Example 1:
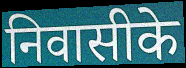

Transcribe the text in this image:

निवासीके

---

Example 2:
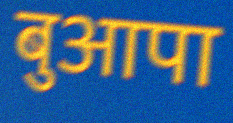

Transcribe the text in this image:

बुआपा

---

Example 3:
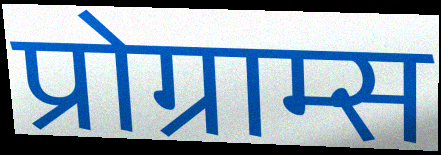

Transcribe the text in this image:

प्रोग्राम्स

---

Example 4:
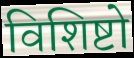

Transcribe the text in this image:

विशिष्टो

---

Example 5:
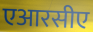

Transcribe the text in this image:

एआरसीए